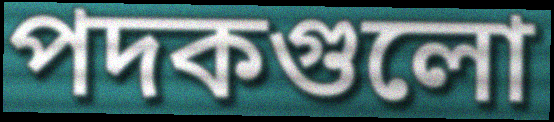
পদকগুলো